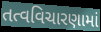
તત્વવિચારણામાં